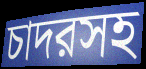
চাদরসহ